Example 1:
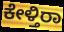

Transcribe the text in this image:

ಕೇಳ್ತಿರಾ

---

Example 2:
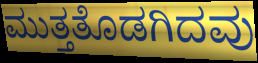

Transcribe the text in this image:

ಮುತ್ತತೊಡಗಿದವು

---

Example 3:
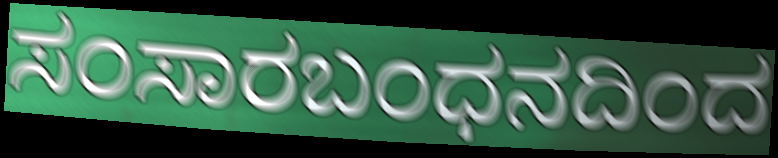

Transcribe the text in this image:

ಸಂಸಾರಬಂಧನದಿಂದ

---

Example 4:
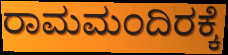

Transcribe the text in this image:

ರಾಮಮಂದಿರಕ್ಕೆ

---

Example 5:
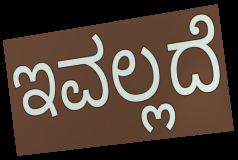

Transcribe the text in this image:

ಇವಲ್ಲದೆ